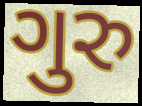
ગુરુ